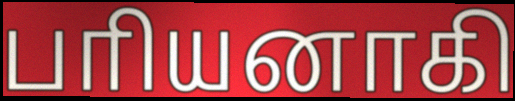
பரியனாகி